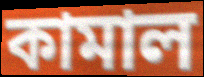
কামাল